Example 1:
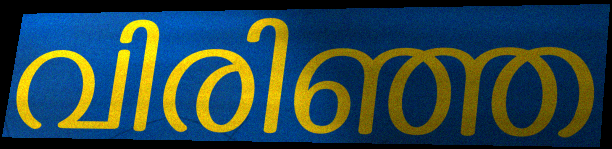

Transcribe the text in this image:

വിരിഞ്ഞ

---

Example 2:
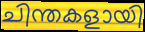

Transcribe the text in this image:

ചിന്തകളായി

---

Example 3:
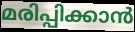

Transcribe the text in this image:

മരിപ്പിക്കാൻ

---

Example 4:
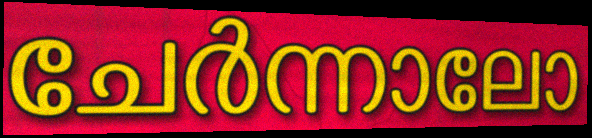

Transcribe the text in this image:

ചേർന്നാലോ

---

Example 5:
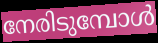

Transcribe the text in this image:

നേരിടുമ്പോൾ